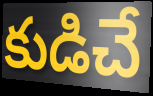
కుడిచే